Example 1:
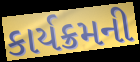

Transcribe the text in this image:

કાર્યક્રમની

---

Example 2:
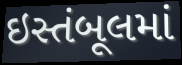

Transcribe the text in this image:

ઇસ્તંબૂલમાં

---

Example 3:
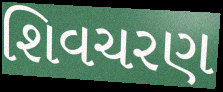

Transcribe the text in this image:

શિવચરણ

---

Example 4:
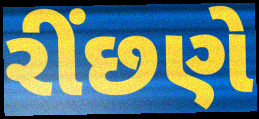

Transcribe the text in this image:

રીંછણે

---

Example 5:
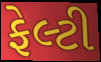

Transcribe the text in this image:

ફેલ્ટી